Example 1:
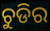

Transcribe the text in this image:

ଚୁଡିର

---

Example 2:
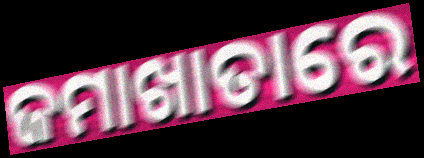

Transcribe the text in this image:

ଜମାଖାତାରେ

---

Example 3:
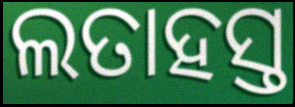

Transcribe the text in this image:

ଲତାହସ୍ତ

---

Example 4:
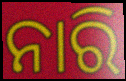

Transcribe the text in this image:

ନାରି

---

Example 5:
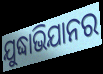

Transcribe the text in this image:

ଯୁଦ୍ଧାଭିଯାନର